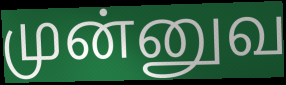
முன்னுவ